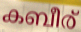
കബീര്